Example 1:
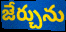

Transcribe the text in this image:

జేర్చును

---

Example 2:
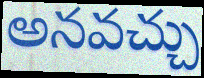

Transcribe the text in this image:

అనవచ్చు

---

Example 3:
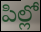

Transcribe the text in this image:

పిల్లో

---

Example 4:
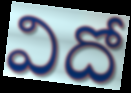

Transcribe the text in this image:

విదో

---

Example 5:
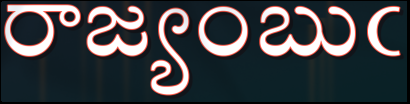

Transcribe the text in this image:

రాజ్యంబుఁ